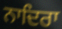
ਨਾਦਿਰਾ